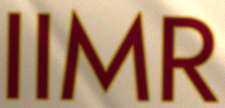
IIMR